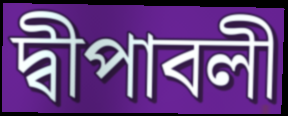
দ্বীপাবলী